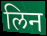
लिन